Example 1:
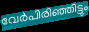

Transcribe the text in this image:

വേർപിരിഞ്ഞിട്ടും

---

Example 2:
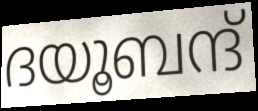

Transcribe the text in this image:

ദയൂബന്ദ്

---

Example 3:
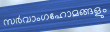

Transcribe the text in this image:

സർവാംഗഹോമങ്ങളും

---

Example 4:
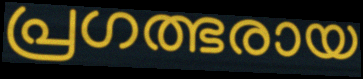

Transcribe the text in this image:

പ്രഗത്ഭരായ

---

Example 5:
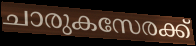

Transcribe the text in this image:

ചാരുകസേരക്ക്